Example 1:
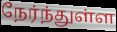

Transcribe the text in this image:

நேர்ந்துள்ள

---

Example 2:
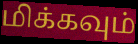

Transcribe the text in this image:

மிக்கவும்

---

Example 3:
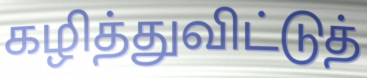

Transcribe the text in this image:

கழித்துவிட்டுத்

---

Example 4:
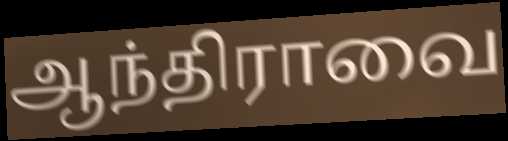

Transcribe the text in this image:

ஆந்திராவை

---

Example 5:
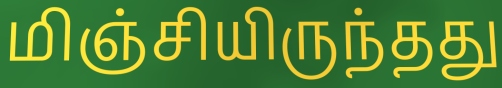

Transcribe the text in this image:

மிஞ்சியிருந்தது